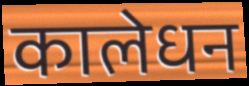
कालेधन